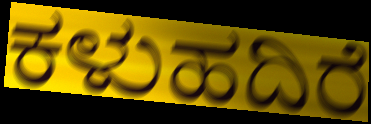
ಕಳುಹದಿರೆ